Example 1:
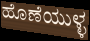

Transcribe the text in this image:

ಹೊಣೆಯುಳ್ಳ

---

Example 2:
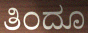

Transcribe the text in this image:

ತಿಂದೂ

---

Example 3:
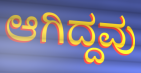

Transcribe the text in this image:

ಆಗಿದ್ದವು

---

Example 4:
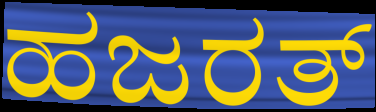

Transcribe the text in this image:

ಹಜರತ್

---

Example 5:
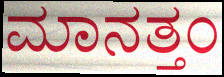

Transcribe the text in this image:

ಮಾನತ್ತಂ